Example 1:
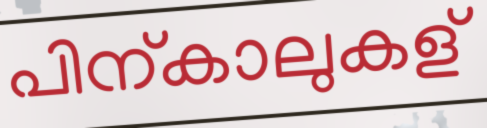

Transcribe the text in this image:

പിന്കാലുകള്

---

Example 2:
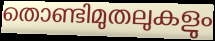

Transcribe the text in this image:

തൊണ്ടിമുതലുകളും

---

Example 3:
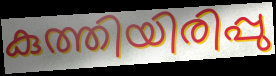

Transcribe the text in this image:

കുത്തിയിരിപ്പു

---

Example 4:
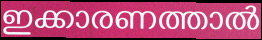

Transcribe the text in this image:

ഇക്കാരണത്താൽ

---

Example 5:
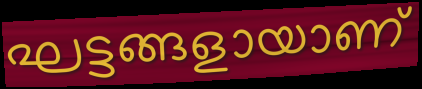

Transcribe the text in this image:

ഘട്ടങ്ങളായാണ്